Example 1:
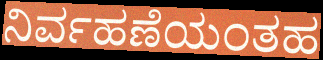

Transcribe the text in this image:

ನಿರ್ವಹಣೆಯಂತಹ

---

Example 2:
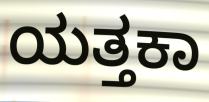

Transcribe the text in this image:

ಯತ್ತಕಾ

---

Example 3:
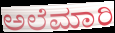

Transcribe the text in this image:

ಅಲೆಮಾರಿ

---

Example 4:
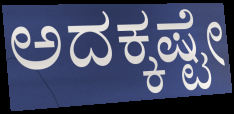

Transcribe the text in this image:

ಅದಕ್ಕಷ್ಟೇ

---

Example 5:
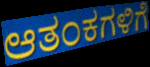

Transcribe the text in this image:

ಆತಂಕಗಳಿಗೆ